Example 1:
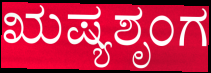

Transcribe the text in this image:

ಋಷ್ಯಶೃಂಗ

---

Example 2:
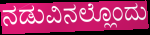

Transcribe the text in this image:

ನಡುವಿನಲ್ಲೊಂದು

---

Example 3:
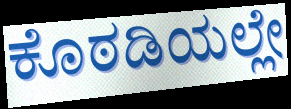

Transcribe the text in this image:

ಕೊಠಡಿಯಲ್ಲೇ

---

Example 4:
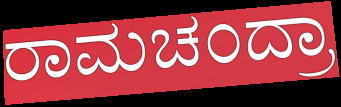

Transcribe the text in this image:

ರಾಮಚಂದ್ರಾ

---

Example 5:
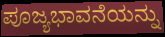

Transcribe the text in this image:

ಪೂಜ್ಯಭಾವನೆಯನ್ನು